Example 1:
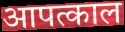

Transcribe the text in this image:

आपत्काल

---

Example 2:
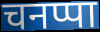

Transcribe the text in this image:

चनप्पा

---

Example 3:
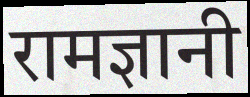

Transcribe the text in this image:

रामज्ञानी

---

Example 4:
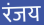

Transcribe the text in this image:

रंजय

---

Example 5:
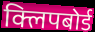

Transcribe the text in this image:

क्लिपबोर्ड